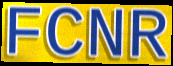
FCNR